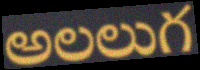
అలలుగ